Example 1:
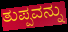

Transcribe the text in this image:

ತುಪ್ಪವನ್ನು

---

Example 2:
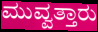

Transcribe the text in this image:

ಮುವ್ವತ್ತಾರು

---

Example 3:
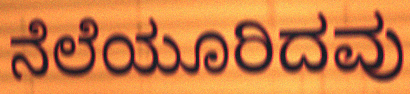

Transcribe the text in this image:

ನೆಲೆಯೂರಿದವು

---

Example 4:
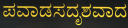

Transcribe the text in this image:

ಪವಾಡಸದೃಶವಾದ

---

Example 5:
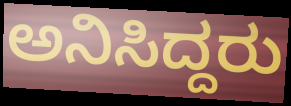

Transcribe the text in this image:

ಅನಿಸಿದ್ದರು